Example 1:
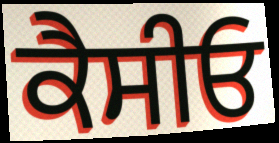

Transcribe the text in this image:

ਕੈਸੀਓ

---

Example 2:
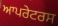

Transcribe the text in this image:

ਆਪਰੇਟਰਸ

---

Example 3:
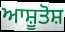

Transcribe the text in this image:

ਆਸ਼ੂਤੋਸ਼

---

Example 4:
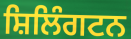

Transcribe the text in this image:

ਸ਼ਿਲਿੰਗਟਨ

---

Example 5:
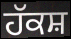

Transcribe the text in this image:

ਹੱਕਸ਼